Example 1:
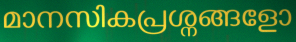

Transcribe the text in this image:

മാനസികപ്രശ്നങ്ങളോ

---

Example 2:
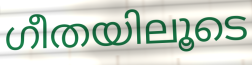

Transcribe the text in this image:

ഗീതയിലൂടെ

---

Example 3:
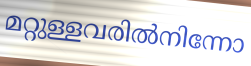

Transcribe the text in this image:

മറ്റുള്ളവരിൽനിന്നോ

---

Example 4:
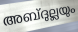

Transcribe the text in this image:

അബ്ദുല്ലയും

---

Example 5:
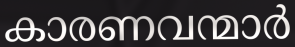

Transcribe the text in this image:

കാരണവന്മാർ